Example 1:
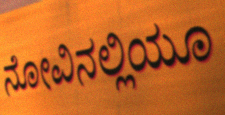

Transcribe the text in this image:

ನೋವಿನಲ್ಲಿಯೂ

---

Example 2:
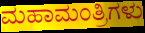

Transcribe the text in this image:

ಮಹಾಮಂತ್ರಿಗಳು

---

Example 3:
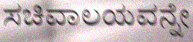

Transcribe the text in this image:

ಸಚಿವಾಲಯವನ್ನೇ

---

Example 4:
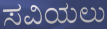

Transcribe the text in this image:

ಸವಿಯಲು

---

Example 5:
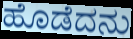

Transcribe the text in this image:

ಹೊಡೆದನು